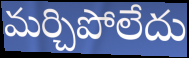
మర్చిపోలేదు